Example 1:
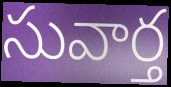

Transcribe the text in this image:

సువార్త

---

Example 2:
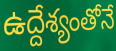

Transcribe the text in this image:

ఉద్దేశ్యంతోనే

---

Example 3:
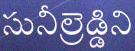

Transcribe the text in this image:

సునీల్రెడ్డిని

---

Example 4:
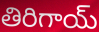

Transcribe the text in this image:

తిరిగాయ్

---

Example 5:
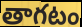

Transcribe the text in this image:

తాగటం